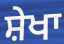
ਸ਼ੇਖਾ